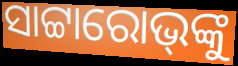
ସାଟ୍ଟାରୋଭ୍‌ଙ୍କୁ